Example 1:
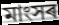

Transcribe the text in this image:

মাংসৰ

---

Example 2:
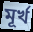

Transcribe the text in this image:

মূৰ্খ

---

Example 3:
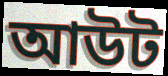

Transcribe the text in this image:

আউট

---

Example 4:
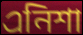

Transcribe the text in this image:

এনিশা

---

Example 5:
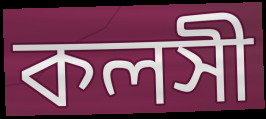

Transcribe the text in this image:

কলসী